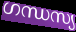
ഗന്ധസ്യ